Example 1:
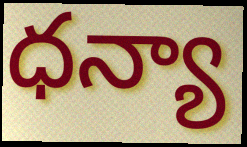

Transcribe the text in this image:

ధన్యా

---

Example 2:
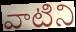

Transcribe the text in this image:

వాటిని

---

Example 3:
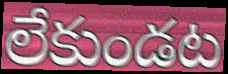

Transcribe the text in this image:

లేకుండట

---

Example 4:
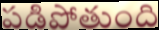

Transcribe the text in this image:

పడిపోతుంది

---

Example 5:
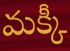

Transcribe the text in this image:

మక్కీ